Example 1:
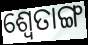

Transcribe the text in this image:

ଶ୍ୱେତାଙ୍ଗ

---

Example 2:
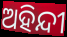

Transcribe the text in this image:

ଅହିନ୍ଦୀ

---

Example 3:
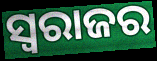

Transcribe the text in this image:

ସ୍ୱରାଜର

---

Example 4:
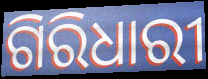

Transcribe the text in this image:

ଗିରିଧାରୀ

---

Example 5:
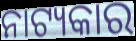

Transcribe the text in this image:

ନାଟ୍ୟକାର